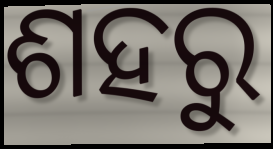
ଶହରୁ